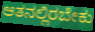
ಆತನಲ್ಲಿರಬೇಕು